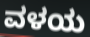
ವಳಯ